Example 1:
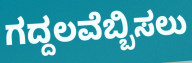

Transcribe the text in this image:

ಗದ್ದಲವೆಬ್ಬಿಸಲು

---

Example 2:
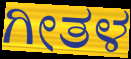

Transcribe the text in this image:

ಗೀತಳ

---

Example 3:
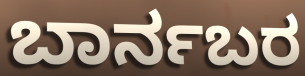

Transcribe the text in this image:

ಬಾರ್ನಬರ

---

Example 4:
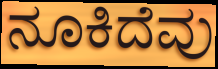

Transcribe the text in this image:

ನೂಕಿದೆವು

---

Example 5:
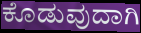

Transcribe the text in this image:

ಕೊಡುವುದಾಗಿ